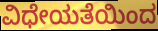
ವಿಧೇಯತೆಯಿಂದ